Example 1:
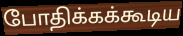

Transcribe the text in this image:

போதிக்கக்கூடிய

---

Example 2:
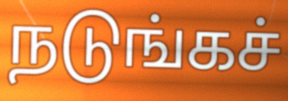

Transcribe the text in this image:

நடுங்கச்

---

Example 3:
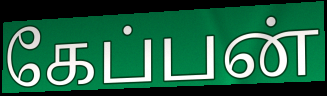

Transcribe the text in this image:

கேப்பன்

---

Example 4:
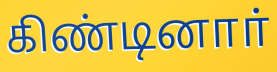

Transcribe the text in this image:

கிண்டினார்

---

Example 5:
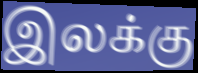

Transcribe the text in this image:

இலக்கு